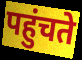
पहुंचते